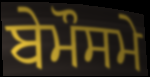
ਬੇਮੌਸਮੇ